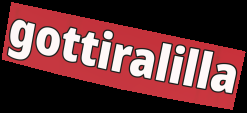
gottiralilla